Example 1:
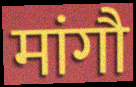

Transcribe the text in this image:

मांगौ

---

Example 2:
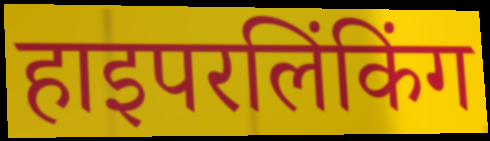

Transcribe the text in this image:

हाइपरलिंकिंग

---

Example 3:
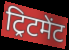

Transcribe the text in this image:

ट्रिटमेंट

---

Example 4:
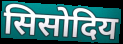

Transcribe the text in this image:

सिसोदिय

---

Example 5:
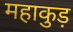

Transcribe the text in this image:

महाकुड़